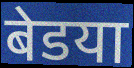
बेडया